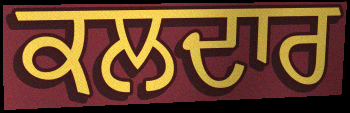
ਕਲਦਾਰ